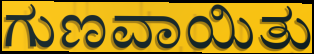
ಗುಣವಾಯಿತು